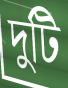
দুটি